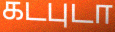
கடபுடா